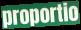
proportio